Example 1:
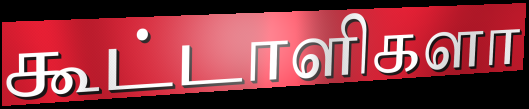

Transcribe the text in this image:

கூட்டாளிகளா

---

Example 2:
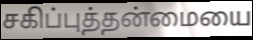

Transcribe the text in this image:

சகிப்புத்தன்மையை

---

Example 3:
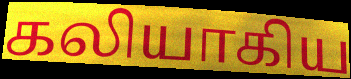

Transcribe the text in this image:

கலியாகிய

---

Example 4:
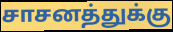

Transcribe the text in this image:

சாசனத்துக்கு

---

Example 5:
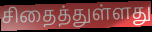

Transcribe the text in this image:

சிதைத்துள்ளது